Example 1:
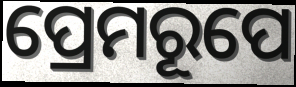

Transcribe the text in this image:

ପ୍ରେମରୂପେ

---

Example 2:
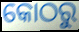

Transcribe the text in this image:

କୋଠରୁ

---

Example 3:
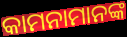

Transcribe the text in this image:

କାମନାମାନଙ୍କ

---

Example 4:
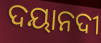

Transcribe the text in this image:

ଦୟାନଦୀ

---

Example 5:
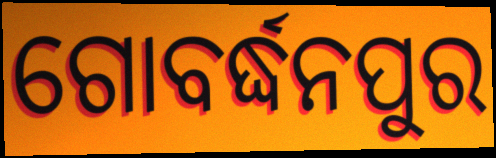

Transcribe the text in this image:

ଗୋବର୍ଦ୍ଧନପୁର